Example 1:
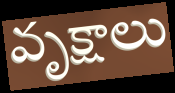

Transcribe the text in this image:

వృక్షాలు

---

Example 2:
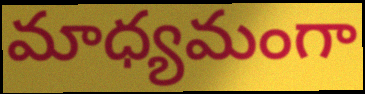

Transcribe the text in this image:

మాధ్యమంగా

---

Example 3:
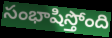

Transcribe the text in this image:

సంభాషిస్తోంది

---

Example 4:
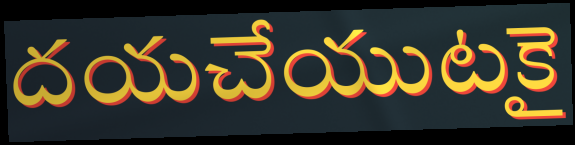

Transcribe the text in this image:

దయచేయుటకై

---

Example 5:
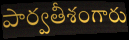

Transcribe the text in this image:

పార్వతీశంగారు